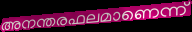
അനന്തരഫലമാണെന്ന്